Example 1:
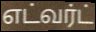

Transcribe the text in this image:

எட்வர்ட்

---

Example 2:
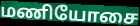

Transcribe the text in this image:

மணியோசை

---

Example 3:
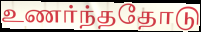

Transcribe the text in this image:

உணர்ந்ததோடு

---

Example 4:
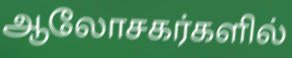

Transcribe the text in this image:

ஆலோசகர்களில்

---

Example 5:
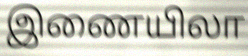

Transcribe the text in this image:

இணையிலா